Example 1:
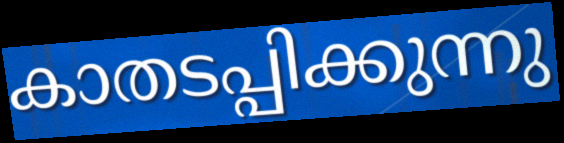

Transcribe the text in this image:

കാതടപ്പിക്കുന്നു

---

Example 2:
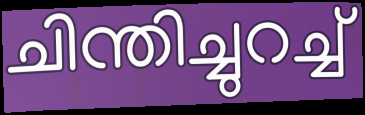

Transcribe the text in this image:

ചിന്തിച്ചുറച്ച്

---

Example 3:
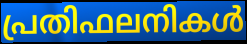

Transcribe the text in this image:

പ്രതിഫലനികൾ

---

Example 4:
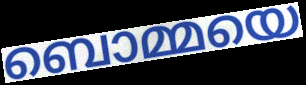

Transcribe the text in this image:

ബൊമ്മയെ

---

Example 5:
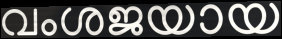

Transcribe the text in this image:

വംശജയായ